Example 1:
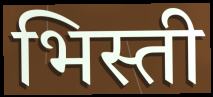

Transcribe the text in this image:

भिस्ती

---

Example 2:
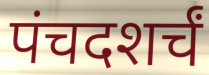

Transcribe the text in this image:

पंचदशर्चं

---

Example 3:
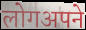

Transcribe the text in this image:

लोगअपने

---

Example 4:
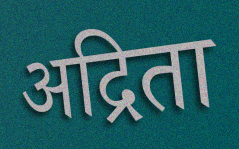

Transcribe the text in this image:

अद्रिता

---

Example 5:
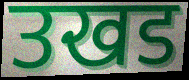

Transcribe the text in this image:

उखड